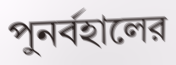
পুনর্বহালের